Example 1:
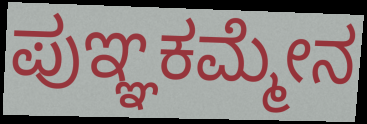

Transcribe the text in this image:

ಪುಞ್ಞಕಮ್ಮೇನ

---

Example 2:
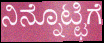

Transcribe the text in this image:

ನಿನ್ನೊಟ್ಟಿಗೆ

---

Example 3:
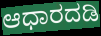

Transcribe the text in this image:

ಆಧಾರದಡಿ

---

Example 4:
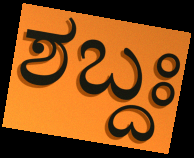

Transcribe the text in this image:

ಶಬ್ದಃ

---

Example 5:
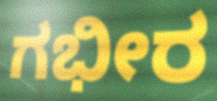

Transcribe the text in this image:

ಗಭೀರ